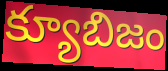
క్యూబిజం